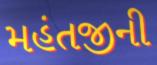
મહંતજીની